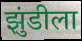
झुंडीला